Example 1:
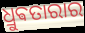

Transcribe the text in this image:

ଧ୍ରୁଵତାରାର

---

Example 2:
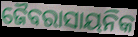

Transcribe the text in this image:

ଜୈବରାସାୟନିକ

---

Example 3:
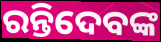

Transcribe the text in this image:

ରନ୍ତିଦେବଙ୍କ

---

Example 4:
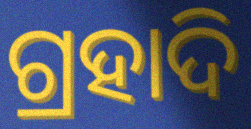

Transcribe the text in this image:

ଗ୍ରହାଦି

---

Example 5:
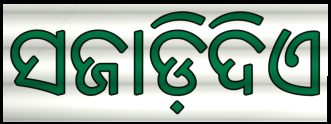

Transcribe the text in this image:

ସଜାଡ଼ିଦିଏ